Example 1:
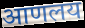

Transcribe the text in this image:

आणलय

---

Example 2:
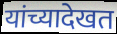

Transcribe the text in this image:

यांच्यादेखत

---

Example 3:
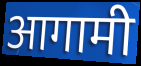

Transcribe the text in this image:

आगामी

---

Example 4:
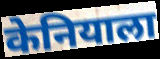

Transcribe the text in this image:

केनियाला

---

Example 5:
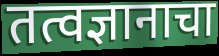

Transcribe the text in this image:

तत्वज्ञानाचा